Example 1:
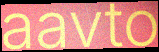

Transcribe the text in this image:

aavto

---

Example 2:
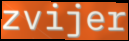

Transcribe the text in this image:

zvijer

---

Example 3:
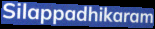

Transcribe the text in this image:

Silappadhikaram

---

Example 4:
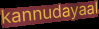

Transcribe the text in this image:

kannudayaal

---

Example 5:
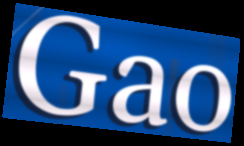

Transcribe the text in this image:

Gao